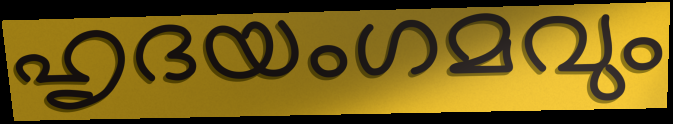
ഹൃദയംഗമവും